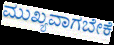
ಮುಖ್ಯವಾಗಬೇಕೆ